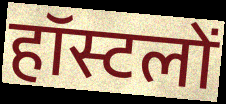
हॉस्टलों